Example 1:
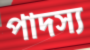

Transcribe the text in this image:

পাদস্য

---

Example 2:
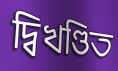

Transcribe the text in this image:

দ্বিখণ্ডিত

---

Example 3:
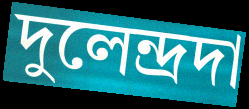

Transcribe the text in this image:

দুলেন্দ্রদা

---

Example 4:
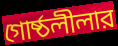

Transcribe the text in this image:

গোষ্ঠলীলার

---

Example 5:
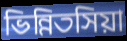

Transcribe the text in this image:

ভিন্নিতসিয়া